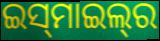
ଇସ୍‌ମାଇଲ୍‌ର